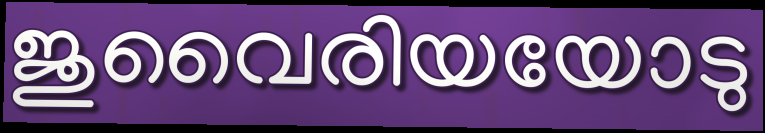
ജുവൈരിയയോടു